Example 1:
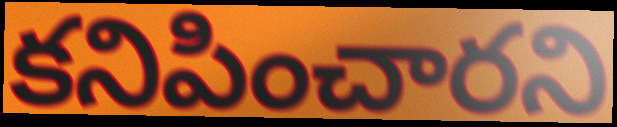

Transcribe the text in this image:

కనిపించారని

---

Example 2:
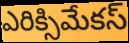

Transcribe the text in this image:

ఎరిక్సిమేకస్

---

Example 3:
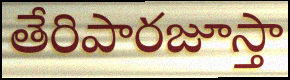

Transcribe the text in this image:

తేరిపారజూస్తా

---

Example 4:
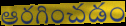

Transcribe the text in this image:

ఆరగించడం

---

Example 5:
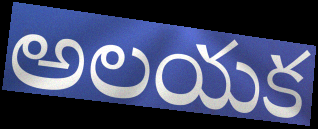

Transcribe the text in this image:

అలయక